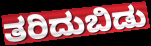
ತರಿದುಬಿಡು